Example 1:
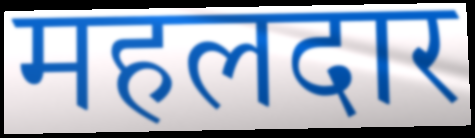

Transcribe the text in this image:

महलदार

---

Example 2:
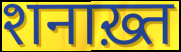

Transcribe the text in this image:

शनाख़्त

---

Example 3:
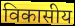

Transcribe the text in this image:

विकासीय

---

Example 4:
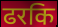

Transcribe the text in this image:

ढरकि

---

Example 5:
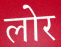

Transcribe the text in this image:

लोर